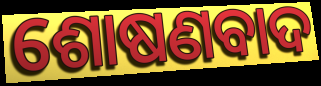
ଶୋଷଣବାଦ